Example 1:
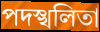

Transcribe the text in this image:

পদস্খলিতা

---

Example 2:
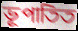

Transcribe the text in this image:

ভূপাতিত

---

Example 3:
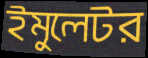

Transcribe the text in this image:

ইমুলেটর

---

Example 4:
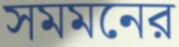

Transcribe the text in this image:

সমমনের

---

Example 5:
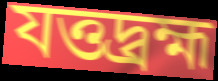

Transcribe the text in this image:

যত্তদ্ব্রহ্ম